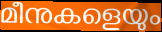
മീനുകളെയും